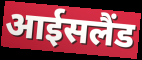
आईसलैंड